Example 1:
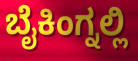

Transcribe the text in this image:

ಬೈಕಿಂಗ್ನಲ್ಲಿ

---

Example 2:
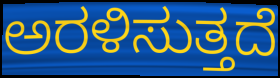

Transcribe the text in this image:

ಅರಳಿಸುತ್ತದೆ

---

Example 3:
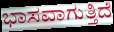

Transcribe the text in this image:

ಭಾಸವಾಗುತ್ತಿದೆ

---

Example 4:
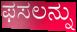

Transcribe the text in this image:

ಫಸಲನ್ನು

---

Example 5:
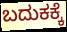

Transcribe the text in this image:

ಬದುಕಕ್ಕೆ